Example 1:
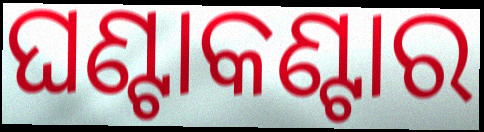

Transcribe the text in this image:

ଘଣ୍ଟାକଣ୍ଟାର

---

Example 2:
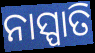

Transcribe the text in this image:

ନାସ୍ପାତି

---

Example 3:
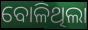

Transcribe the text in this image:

ବୋଳିଥିଲା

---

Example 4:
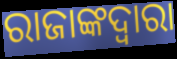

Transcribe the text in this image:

ରାଜାଙ୍କଦ୍ଵାରା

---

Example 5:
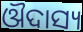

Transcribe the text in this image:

ଔଦାସ୍ୟ